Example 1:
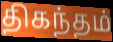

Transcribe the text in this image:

திகந்தம்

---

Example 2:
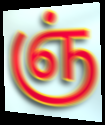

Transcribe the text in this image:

ஞ்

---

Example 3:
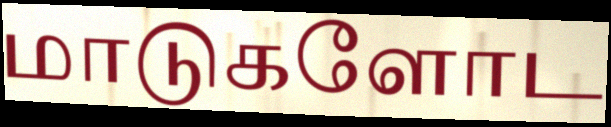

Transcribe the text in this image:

மாடுகளோட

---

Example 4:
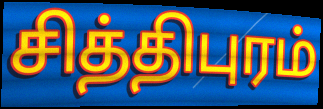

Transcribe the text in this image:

சித்திபுரம்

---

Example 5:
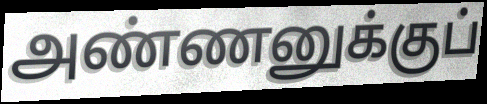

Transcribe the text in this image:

அண்ணனுக்குப்